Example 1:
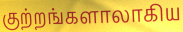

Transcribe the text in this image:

குற்றங்களாலாகிய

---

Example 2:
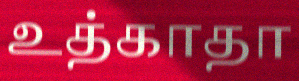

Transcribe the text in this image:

உத்காதா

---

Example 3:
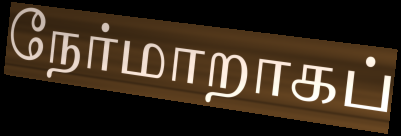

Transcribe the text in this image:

நேர்மாறாகப்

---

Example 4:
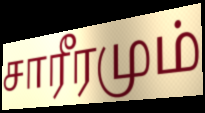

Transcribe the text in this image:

சாரீரமும்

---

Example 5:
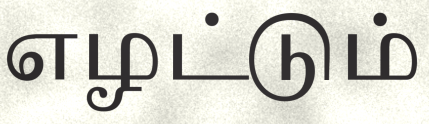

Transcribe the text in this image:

எழட்டும்